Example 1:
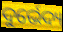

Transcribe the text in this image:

ଦୁର୍ଭେଦ୍ୟ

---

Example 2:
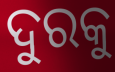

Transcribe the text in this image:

ଦୁରକୁ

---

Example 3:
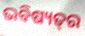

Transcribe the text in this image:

ଭବିଷ୍ୟତ୍‌ର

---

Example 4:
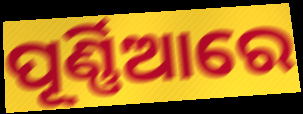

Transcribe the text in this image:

ପୂର୍ଣ୍ଣିଆରେ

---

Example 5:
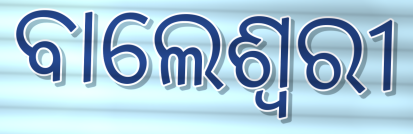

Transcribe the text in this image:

ବାଲେଶ୍ଵରୀ